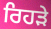
ਰਿਹੜੇ